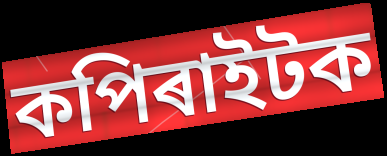
কপিৰাইটক